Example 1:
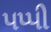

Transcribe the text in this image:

પપ્પી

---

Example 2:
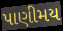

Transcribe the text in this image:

પાણીમય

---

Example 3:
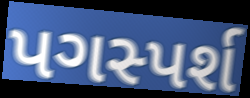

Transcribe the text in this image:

પગસ્પર્શ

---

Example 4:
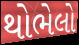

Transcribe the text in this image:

થોભેલો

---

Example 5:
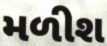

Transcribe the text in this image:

મળીશ